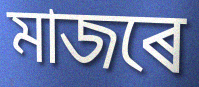
মাজৰে